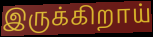
இருக்கிறாய்